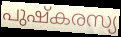
പുഷ്കരസ്യ